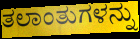
ತಲಾಂತುಗಳನ್ನು